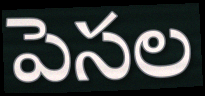
పెసల